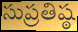
సుప్రతిష్ఠ